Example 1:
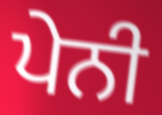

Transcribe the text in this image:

ਪੇਨੀ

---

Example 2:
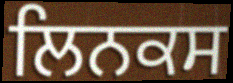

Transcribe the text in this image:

ਲਿਨਕਸ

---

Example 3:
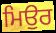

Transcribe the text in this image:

ਮਿਉਰ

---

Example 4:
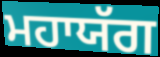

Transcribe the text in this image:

ਮਹਾਯੱਗ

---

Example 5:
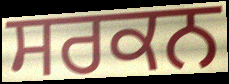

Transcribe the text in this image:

ਸਰਕਨ